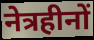
नेत्रहीनों